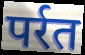
पर्रत